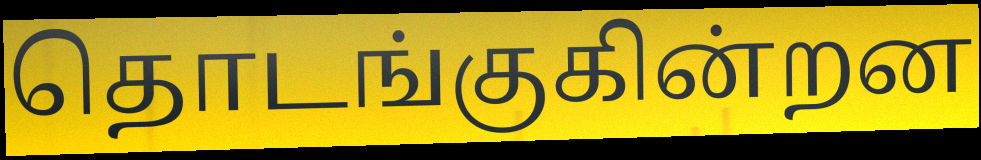
தொடங்குகின்றன